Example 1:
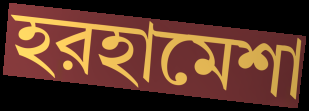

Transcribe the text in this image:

হরহামেশা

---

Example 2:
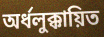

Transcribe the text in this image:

অর্ধলুক্কায়িত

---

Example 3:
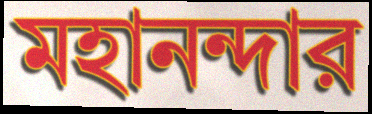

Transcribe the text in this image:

মহানন্দার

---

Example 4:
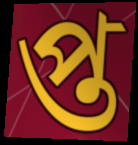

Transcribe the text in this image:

প্ত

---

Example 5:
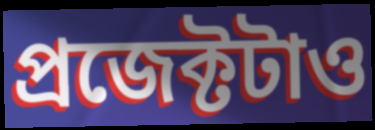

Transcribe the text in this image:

প্রজেক্টটাও